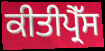
ਕੀਤੀਪ੍ਰੈੱਸ